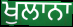
ਖੁਲਾਨਾ